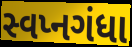
સ્વપ્નગંધા